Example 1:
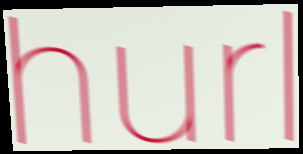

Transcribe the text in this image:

hurl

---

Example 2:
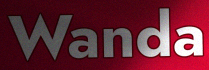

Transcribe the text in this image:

Wanda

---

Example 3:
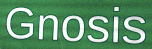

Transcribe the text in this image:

Gnosis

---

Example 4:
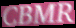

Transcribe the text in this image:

CBMR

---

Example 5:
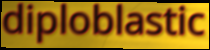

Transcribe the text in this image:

diploblastic